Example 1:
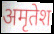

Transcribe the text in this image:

अमृतेश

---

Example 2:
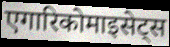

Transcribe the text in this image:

एगारिकोमाइसेट्स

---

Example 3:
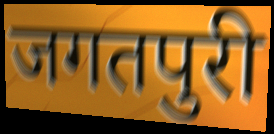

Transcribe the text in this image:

जगतपुरी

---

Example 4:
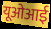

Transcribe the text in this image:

यूओआई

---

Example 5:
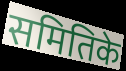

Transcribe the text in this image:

समितिके